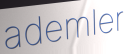
ademler